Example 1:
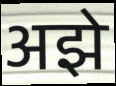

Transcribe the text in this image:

अझे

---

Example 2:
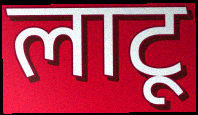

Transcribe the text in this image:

लाटू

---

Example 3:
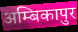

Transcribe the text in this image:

अम्बिकापुर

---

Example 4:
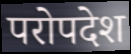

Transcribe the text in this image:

परोपदेश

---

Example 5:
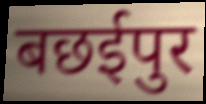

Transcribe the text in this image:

बछईपुर